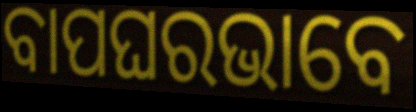
ବାପଘରଭାବେ